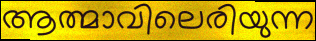
ആത്മാവിലെരിയുന്ന